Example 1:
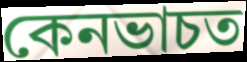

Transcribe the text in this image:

কেনভাচত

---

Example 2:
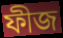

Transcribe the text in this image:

ফীজ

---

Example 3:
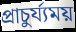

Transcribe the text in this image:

প্ৰাচুৰ্য্যময়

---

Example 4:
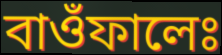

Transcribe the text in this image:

বাওঁফালেঃ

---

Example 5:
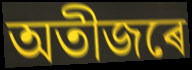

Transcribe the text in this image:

অতীজৰে